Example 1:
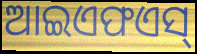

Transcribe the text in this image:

ଆଇଏଫଏସ୍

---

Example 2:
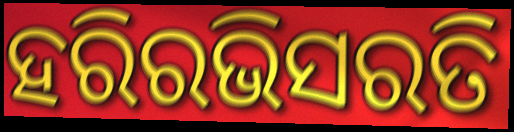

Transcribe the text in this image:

ହରିରଭିସରତି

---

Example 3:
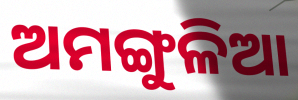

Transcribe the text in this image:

ଅମଙ୍ଗୁଳିଆ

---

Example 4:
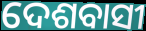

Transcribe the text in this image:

ଦେଶବାସୀ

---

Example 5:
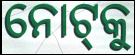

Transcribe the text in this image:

ନୋଟ୍‌କୁ